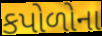
કપોળોના